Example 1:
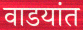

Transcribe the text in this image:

वाडयांत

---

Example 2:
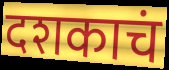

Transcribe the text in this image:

दशकाचं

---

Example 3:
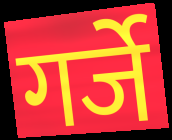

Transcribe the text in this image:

गर्जे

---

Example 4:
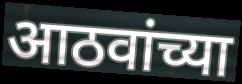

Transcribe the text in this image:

आठवांच्या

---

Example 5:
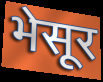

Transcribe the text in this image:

भेसूर